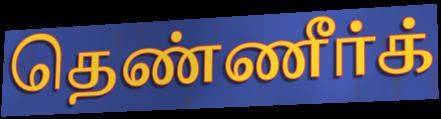
தெண்ணீர்க்